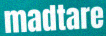
madtare